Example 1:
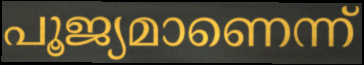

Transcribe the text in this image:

പൂജ്യമാണെന്ന്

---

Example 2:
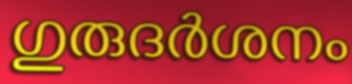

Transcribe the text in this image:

ഗുരുദർശനം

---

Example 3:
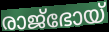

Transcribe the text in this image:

രാജ്ഭോയ്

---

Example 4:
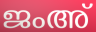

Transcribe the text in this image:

ജംഅ്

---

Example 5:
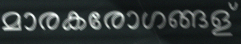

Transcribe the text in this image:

മാരകരോഗങ്ങള്